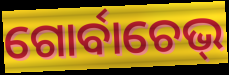
ଗୋର୍ବାଚେଭ୍